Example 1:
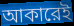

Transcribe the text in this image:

আকারেই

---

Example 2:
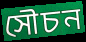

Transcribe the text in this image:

সৌচন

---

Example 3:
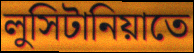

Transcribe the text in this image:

লুসিটানিয়াতে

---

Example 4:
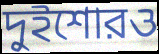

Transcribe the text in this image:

দুইশোরও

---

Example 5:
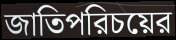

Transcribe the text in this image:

জাতিপরিচয়ের